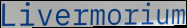
Livermorium